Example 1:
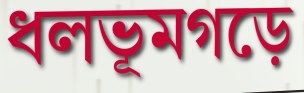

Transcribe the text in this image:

ধলভূমগড়ে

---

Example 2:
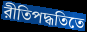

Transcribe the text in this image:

রীতিপদ্ধতিতে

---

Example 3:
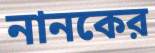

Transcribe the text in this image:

নানকের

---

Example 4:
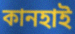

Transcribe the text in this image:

কানহাই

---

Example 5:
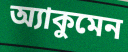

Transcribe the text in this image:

অ্যাকুমেন